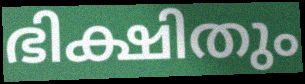
ഭിക്ഷിതും